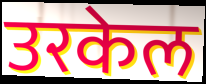
उरकेल